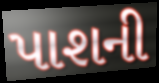
પાશની